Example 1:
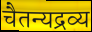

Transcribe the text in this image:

चैतन्यद्रव्य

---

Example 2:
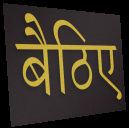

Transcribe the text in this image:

बैठिए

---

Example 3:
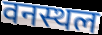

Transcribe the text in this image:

वनस्थल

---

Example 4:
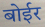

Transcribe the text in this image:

बोईर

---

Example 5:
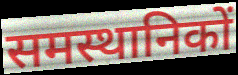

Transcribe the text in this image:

समस्थानिकों